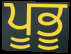
ਪੂਭੂ